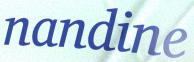
nandine